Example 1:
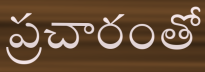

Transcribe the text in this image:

ప్రచారంతో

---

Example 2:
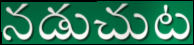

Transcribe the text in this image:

నడుచుట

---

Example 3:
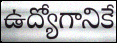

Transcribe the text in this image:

ఉద్యోగానికే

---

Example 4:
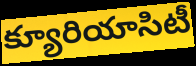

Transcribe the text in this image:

క్యూరియాసిటీ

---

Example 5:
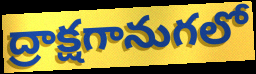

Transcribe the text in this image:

ద్రాక్షగానుగలో